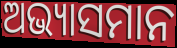
ଅଭ୍ୟାସମାନ